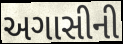
અગાસીની